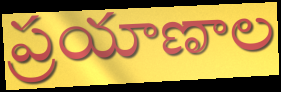
ప్రయాణాల